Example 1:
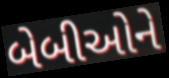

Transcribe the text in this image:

બેબીઓને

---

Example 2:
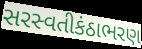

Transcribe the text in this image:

સરસ્વતીકંઠાભરણ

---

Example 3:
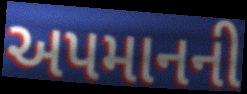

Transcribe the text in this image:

અપમાનની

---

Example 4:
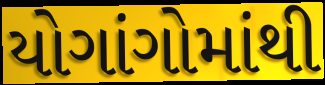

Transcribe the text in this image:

યોગાંગોમાંથી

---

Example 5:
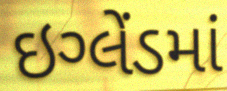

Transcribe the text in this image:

ઇગ્લેંડમાં